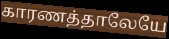
காரணத்தாலேயே